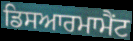
ਡਿਸਆਰਮਾਮੈਂਟ